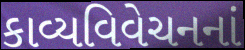
કાવ્યવિવેચનનાં